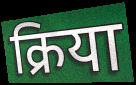
क्रिया